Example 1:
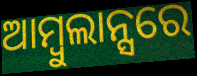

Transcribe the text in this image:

ଆମ୍ବୁଲାନ୍ସରେ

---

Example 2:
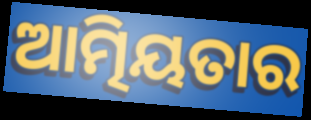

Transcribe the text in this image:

ଆତ୍ମିୟତାର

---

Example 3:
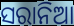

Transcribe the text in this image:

ସରାନିଆ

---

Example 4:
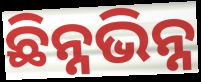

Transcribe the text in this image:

ଛିନ୍ନଭିନ୍ନ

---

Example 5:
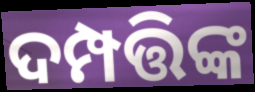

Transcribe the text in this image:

ଦମ୍ପତ୍ତିଙ୍କ